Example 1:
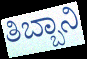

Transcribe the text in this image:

ತಿಬ್ಬಾನಿ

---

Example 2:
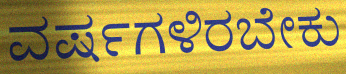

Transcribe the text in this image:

ವರ್ಷಗಳಿರಬೇಕು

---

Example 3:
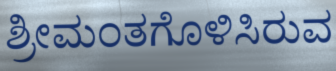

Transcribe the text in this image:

ಶ್ರೀಮಂತಗೊಳಿಸಿರುವ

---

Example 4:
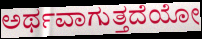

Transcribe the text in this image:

ಅರ್ಥವಾಗುತ್ತದೆಯೋ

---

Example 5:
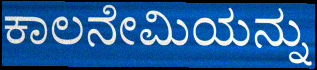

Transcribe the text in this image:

ಕಾಲನೇಮಿಯನ್ನು